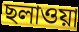
ছলাওয়া